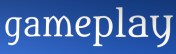
gameplay